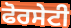
ਫੋਰਸੇਟੀ